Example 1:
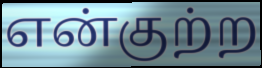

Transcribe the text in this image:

என்குற்ற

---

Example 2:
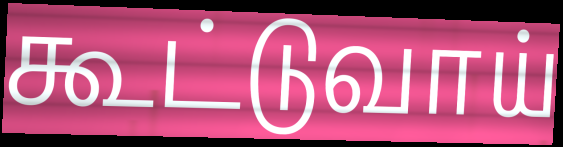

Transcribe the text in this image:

கூட்டுவாய்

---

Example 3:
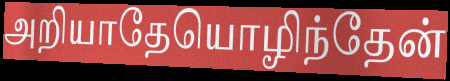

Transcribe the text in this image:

அறியாதேயொழிந்தேன்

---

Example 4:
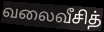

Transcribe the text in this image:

வலைவீசித்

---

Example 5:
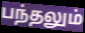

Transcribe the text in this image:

பந்தலும்